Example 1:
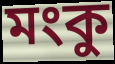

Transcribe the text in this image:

মংকু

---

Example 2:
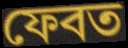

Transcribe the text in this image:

ফেবত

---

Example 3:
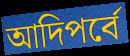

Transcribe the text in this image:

আদিপর্বে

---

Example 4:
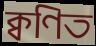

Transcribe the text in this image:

ক্বণিত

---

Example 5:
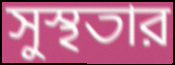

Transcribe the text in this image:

সুস্থতার